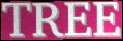
TREE